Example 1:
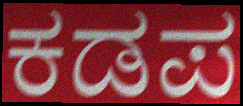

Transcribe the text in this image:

ಕಡಪ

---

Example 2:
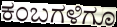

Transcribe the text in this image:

ಕಂಬಗಳಿಗೂ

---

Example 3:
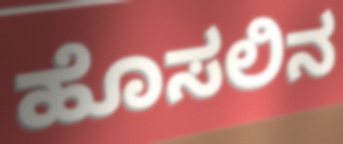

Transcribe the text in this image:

ಹೊಸಲಿನ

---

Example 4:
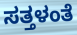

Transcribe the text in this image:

ಸತ್ತಳಂತೆ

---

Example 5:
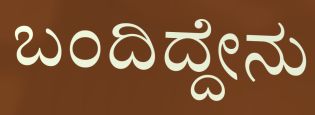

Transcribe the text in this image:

ಬಂದಿದ್ದೇನು